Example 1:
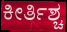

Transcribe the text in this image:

ಕೀರ್ತಿಶ್ಚ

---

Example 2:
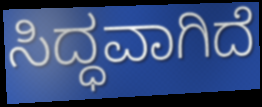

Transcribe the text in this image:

ಸಿದ್ಧವಾಗಿದೆ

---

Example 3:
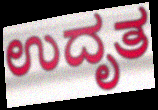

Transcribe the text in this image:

ಉದೃತ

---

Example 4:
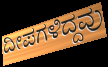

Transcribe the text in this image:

ದೀಪಗಳಿದ್ದವು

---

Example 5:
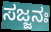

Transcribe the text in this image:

ಸಜ್ಜನಃ